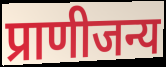
प्राणीजन्य